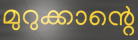
മുറുക്കാന്റെ